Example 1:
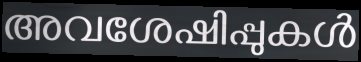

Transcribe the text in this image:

അവശേഷിപ്പുകൾ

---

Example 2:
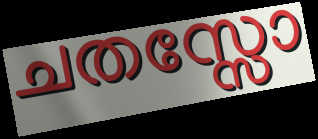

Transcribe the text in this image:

ചതസ്സോ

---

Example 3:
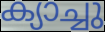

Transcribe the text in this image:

ക്യാച്ചു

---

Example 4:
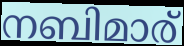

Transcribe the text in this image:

നബിമാര്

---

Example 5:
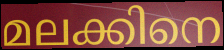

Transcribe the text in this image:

മലക്കിനെ